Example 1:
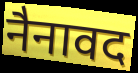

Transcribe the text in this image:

नैनावद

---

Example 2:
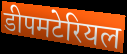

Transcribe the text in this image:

डीपमटेरियल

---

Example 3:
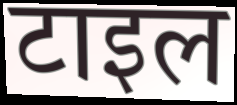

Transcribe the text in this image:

टाइल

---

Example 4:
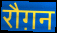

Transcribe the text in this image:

रौग़न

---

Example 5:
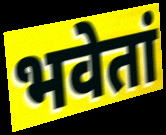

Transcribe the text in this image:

भवेतां